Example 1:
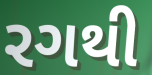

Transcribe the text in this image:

રગથી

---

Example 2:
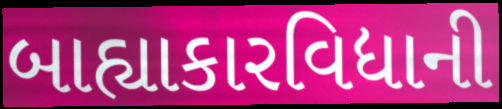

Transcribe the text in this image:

બાહ્યાકારવિદ્યાની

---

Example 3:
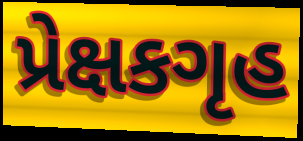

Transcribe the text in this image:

પ્રેક્ષકગૃહ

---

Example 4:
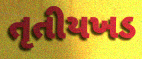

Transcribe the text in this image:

તૃતીયખડ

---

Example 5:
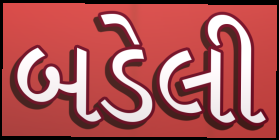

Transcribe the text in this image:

બડેલી